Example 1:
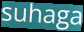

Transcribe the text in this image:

suhaga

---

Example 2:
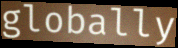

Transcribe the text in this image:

globally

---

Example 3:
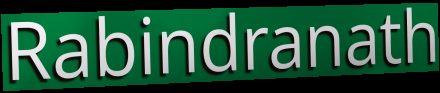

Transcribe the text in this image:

Rabindranath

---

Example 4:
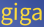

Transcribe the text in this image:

giga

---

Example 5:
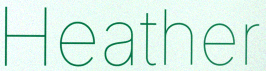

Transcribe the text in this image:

Heather